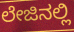
ಲೇಜಿನಲ್ಲಿ